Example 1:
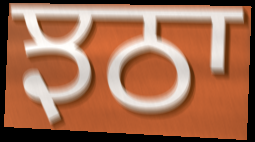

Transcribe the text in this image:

ਝਠਾ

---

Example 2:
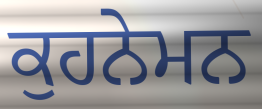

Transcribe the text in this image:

ਕੁਹਨੇਮਨ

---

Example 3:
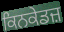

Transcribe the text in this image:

ਕਿਨਕੇਡਜ਼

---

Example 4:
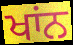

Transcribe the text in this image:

ਖਾਂਨ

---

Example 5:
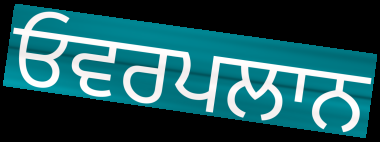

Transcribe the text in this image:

ਓਵਰਪਲਾਨ